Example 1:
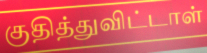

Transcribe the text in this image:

குதித்துவிட்டாள்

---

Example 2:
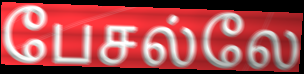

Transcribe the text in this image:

பேசல்லே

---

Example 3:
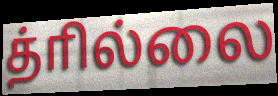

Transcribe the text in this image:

த்ரில்லை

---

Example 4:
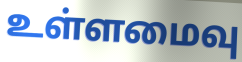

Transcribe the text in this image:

உள்ளமைவு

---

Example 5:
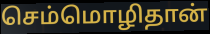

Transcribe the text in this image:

செம்மொழிதான்